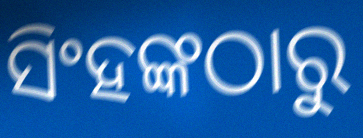
ସିଂହଙ୍କଠାରୁ